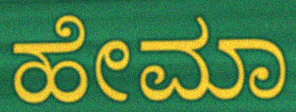
ಹೇಮಾ